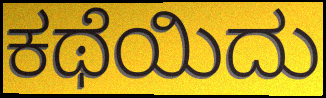
ಕಥೆಯಿದು